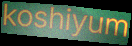
koshiyum